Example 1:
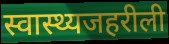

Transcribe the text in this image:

स्वास्थ्यजहरीली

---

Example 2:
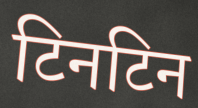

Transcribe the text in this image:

टिनटिन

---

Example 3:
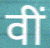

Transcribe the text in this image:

वीं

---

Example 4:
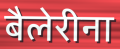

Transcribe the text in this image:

बैलेरीना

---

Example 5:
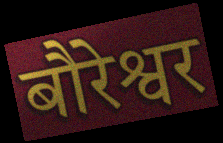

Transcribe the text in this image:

बौरेश्वर